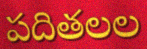
పదితలల